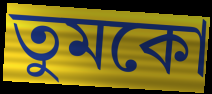
তুমকো